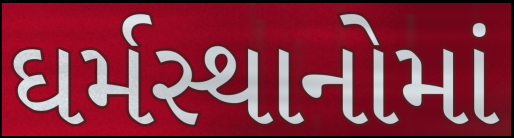
ઘર્મસ્થાનોમાં